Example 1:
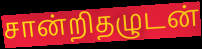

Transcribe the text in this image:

சான்றிதழுடன்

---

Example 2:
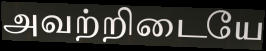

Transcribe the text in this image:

அவற்றிடையே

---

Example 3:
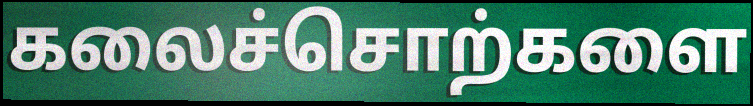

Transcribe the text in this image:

கலைச்சொற்களை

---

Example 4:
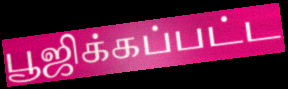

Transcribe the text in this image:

பூஜிக்கப்பட்ட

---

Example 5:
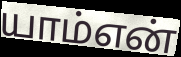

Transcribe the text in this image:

யாம்என்